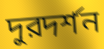
দুরদর্শন